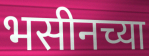
भसीनच्या